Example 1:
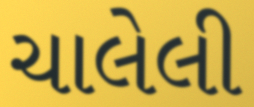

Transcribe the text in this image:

ચાલેલી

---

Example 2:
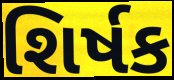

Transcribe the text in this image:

શિર્ષક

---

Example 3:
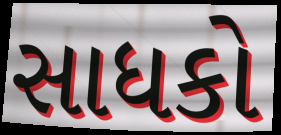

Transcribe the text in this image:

સાધકો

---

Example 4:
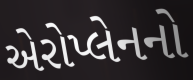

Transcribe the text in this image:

એરોપ્લેનનો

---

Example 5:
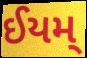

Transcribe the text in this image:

ઈયમ્